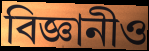
বিজ্ঞানীও